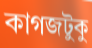
কাগজটুকু